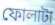
ফোলাটা